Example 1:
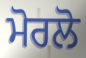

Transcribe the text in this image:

ਮੋਰਲੋ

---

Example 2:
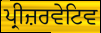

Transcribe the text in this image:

ਪ੍ਰੀਜ਼ਰਵੇਟਿਵ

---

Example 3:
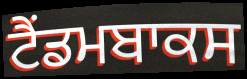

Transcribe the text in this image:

ਟੈਂਡਮਬਾਕਸ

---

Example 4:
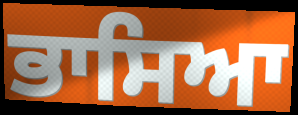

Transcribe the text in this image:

ਭਾਸਿਆ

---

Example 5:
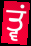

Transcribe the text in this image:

ਤ੍ਵਂ